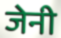
जेनी